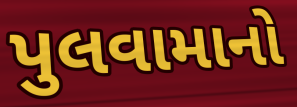
પુલવામાનો